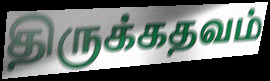
திருக்கதவம்